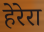
हेरेरा